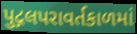
પુદ્ગલપરાવર્તકાળમાં